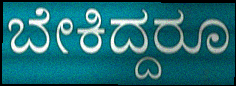
ಬೇಕಿದ್ದರೂ